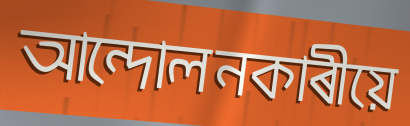
আন্দোলনকাৰীয়ে